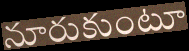
నూరుకుంటూ